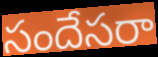
సందేసరా